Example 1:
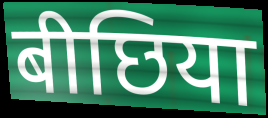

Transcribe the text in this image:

बीछिया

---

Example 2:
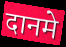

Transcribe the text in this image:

दानमे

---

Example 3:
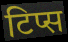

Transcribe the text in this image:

टिप्‍स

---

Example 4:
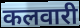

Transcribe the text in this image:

कलवारी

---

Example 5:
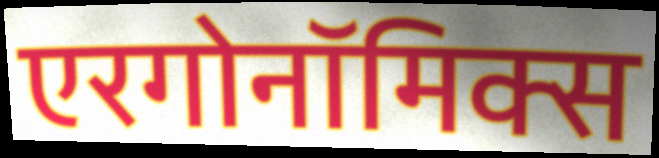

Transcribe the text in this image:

एरगोनॉमिक्स